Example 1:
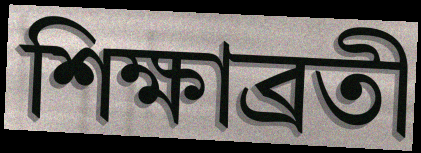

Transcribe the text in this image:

শিক্ষাব্রতী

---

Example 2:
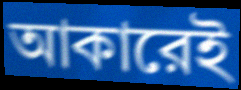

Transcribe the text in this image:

আকারেই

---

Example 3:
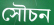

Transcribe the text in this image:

সৌচন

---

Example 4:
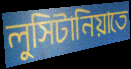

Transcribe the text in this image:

লুসিটানিয়াতে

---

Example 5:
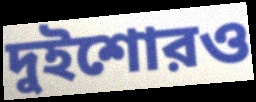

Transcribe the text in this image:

দুইশোরও